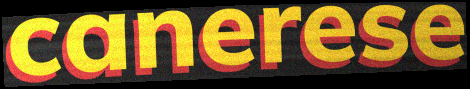
canerese